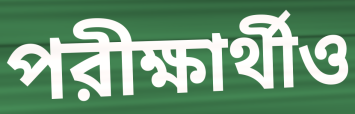
পরীক্ষার্থীও